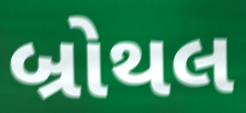
બ્રોથલ